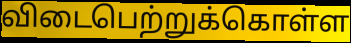
விடைபெற்றுக்கொள்ள